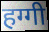
हग्गी